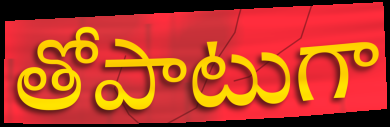
తోపాటుగా